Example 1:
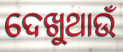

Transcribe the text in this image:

ଦେଖୁଥାଉଁ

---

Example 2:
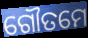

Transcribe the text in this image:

ଗୌତମେ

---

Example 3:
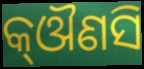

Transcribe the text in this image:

କ୍ଔଣସି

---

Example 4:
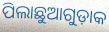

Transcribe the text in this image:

ପିଲାଛୁଆଗୁଡ଼ାକ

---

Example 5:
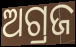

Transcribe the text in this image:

ଅଗ୍ରଜ